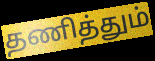
தணித்தும்